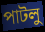
পাটলু